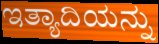
ಇತ್ಯಾದಿಯನ್ನು